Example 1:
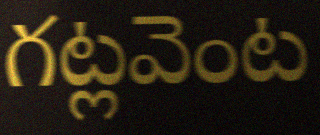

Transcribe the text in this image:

గట్లవెంట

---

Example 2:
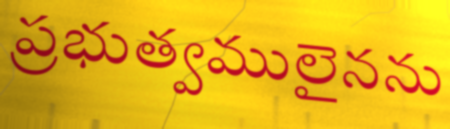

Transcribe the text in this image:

ప్రభుత్వములైనను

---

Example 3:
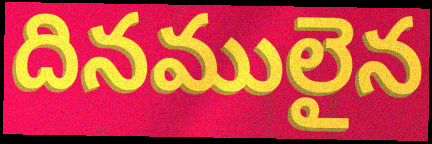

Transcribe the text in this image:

దినములైన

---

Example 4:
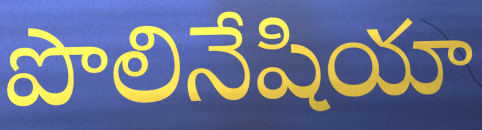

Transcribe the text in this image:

పొలినేషియా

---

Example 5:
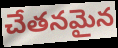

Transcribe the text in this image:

చేతనమైన